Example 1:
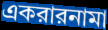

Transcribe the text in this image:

একরারনামা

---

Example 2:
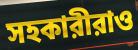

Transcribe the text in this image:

সহকারীরাও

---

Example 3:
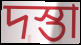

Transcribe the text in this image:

দস্তা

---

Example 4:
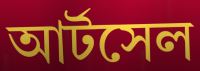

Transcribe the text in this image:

আর্টসেল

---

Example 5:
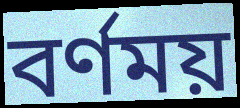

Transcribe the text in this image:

বর্ণময়